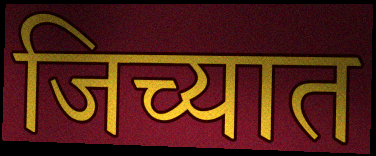
जिच्यात